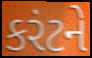
કરંટને